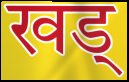
खड्